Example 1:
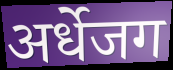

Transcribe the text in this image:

अर्धेजग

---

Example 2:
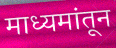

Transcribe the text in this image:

माध्यमांतून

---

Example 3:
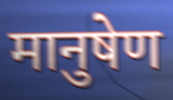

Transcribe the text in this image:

मानुषेण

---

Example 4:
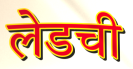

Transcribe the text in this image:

लेडची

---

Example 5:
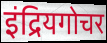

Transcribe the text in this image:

इंद्रियगोचर